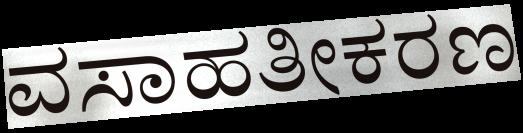
ವಸಾಹತೀಕರಣ